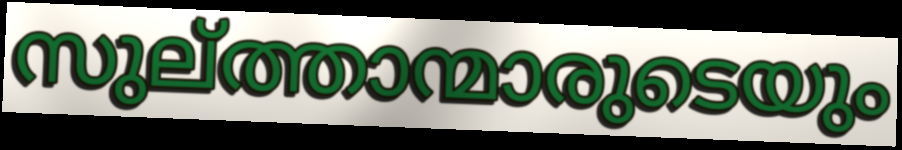
സുല്ത്താന്മാരുടെയും